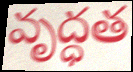
వృద్ధత